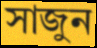
সাজুন